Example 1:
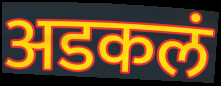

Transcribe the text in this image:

अडकलं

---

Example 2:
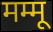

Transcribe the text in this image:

मम्मू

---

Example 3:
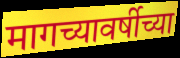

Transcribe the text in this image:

मागच्यावर्षीच्या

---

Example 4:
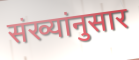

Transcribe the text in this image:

संख्यांनुसार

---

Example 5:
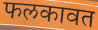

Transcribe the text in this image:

फलकावत